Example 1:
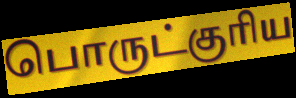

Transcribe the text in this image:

பொருட்குரிய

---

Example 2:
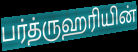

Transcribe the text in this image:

பர்த்ருஹரியின்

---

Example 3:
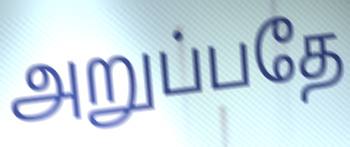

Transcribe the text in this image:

அறுப்பதே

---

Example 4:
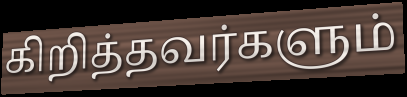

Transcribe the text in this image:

கிறித்தவர்களும்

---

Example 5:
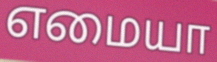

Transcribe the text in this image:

எமையா